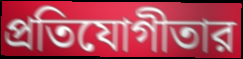
প্রতিযোগীতার